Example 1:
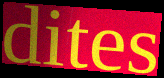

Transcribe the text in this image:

dites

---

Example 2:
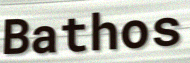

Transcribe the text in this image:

Bathos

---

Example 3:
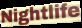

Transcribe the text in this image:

Nightlife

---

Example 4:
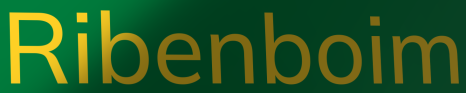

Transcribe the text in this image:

Ribenboim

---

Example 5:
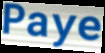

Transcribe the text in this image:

Paye